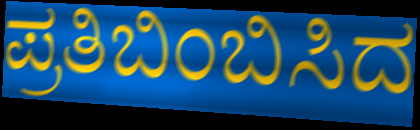
ಪ್ರತಿಬಿಂಬಿಸಿದ